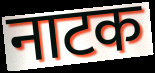
नाटक